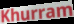
Khurram